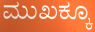
ಮುಖಕ್ಕೂ